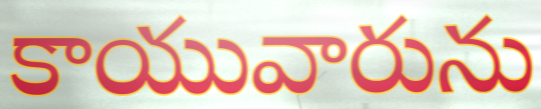
కాయువారును